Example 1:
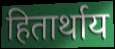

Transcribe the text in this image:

हितार्थाय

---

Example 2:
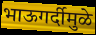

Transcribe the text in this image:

भाऊगर्दीमुळे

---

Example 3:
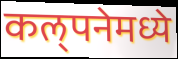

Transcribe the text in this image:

कल्पनेमध्ये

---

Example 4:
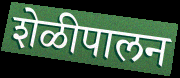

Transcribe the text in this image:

शेळीपालन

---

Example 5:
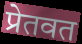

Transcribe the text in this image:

प्रेतवत